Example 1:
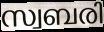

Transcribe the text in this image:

സ്വബരി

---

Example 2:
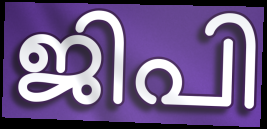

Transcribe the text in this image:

ജിപി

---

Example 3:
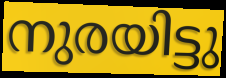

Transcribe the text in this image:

നുരയിട്ടു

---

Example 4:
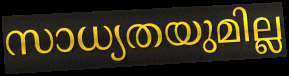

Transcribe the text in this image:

സാധ്യതയുമില്ല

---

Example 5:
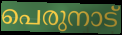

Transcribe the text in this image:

പെരുനാട്